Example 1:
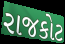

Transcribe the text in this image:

રાજકોટ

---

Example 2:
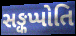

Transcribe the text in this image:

સઙ્કપ્પોતિ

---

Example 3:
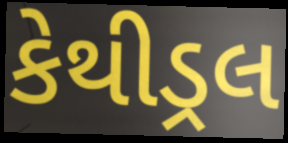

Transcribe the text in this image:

કેથીડ્રલ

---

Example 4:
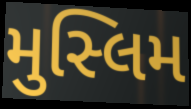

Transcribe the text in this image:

મુસ્લિમ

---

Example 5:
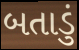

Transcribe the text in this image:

બતાડું